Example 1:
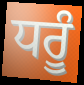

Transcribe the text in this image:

ਧਰੂੰ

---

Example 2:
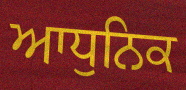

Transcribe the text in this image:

ਆਧੁਨਿਕ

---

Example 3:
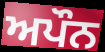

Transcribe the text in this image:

ਅਪੌਨ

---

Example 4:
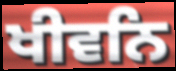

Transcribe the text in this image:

ਖੀਵਨਿ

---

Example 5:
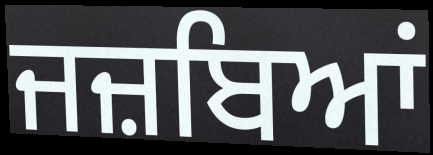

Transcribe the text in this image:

ਜਜ਼ਬਿਆਂ